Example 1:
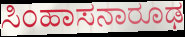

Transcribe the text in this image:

ಸಿಂಹಾಸನಾರೂಢ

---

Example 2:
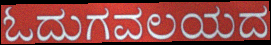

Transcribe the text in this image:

ಓದುಗವಲಯದ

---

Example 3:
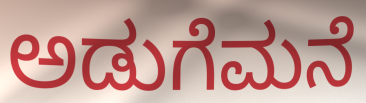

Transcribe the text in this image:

ಅಡುಗೆಮನೆ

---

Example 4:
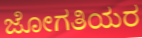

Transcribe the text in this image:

ಜೋಗತಿಯರ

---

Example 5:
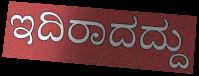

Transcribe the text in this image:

ಇದಿರಾದದ್ದು